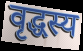
वृद्धस्य